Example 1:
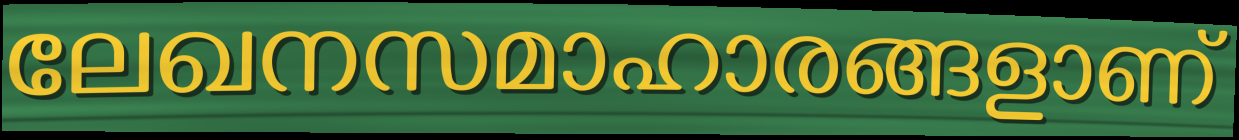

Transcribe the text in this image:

ലേഖനസമാഹാരങ്ങളാണ്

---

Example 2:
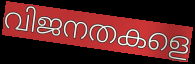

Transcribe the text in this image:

വിജനതകളെ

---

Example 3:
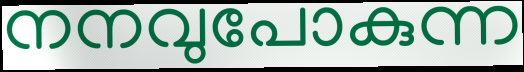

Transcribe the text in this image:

നനവുപോകുന്ന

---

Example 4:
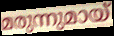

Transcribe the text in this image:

മരുന്നുമായ്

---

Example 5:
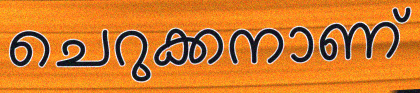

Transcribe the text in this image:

ചെറുക്കനാണ്